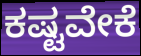
ಕಷ್ಟವೇಕೆ